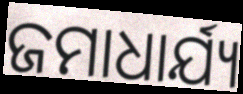
ଜମାଧାର୍ଯ୍ୟ